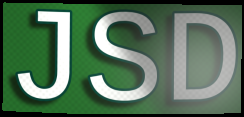
JSD